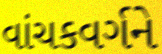
વાંચકવર્ગને